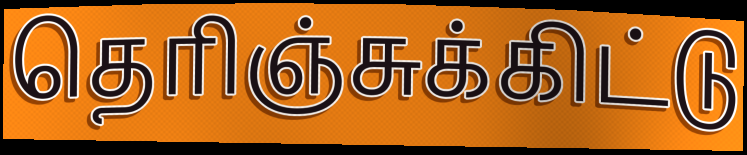
தெரிஞ்சுக்கிட்டு